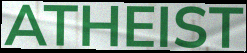
ATHEIST